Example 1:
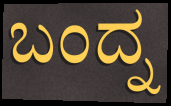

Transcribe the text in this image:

ಬಂದ್ನ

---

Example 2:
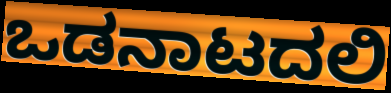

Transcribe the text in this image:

ಒಡನಾಟದಲಿ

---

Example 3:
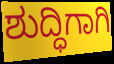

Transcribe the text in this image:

ಶುದ್ಧಿಗಾಗಿ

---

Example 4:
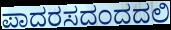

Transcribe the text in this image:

ಪಾದರಸದಂದದಲಿ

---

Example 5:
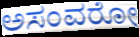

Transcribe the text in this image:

ಅಸಂವರೋ